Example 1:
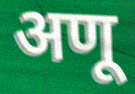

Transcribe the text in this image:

अणू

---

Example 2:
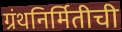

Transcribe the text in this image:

ग्रंथनिर्मितीची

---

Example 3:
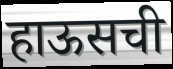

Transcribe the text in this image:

हाऊसची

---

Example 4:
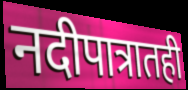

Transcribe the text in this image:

नदीपात्रातही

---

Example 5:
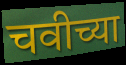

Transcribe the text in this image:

चवीच्या